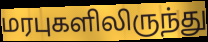
மரபுகளிலிருந்து